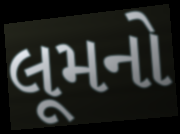
લૂમનો